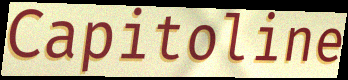
Capitoline